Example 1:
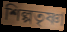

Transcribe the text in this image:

শিল্পতৃষ্ণা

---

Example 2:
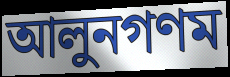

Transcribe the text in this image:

আলুনগণম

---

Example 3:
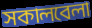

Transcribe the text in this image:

সকালবেলা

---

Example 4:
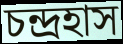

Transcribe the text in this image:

চন্দ্রহাস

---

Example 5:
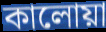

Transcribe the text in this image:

কালোয়া